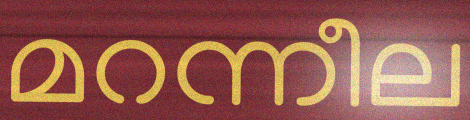
മറന്നീല